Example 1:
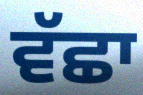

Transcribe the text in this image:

ਵੱਛਾ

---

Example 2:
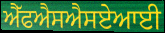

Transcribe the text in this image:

ਐੱਫਐਸਐਸਏਆਈ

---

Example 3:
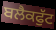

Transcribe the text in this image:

ਬਲੈਕਫੁੱਟ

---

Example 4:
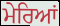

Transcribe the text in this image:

ਮੇਰਿਆਂ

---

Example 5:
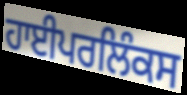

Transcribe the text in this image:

ਹਾਈਪਰਲਿੰਕਸ